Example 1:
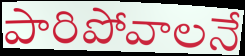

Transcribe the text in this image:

పారిపోవాలనే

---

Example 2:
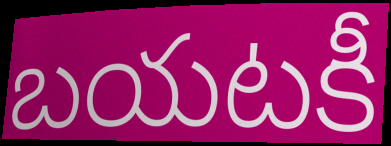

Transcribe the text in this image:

బయటకీ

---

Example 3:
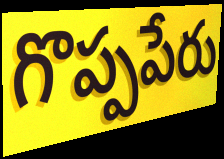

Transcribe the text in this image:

గొప్పపేరు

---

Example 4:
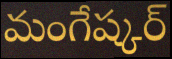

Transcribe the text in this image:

మంగేష్కర్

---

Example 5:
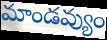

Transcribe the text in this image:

మాండవ్యుం